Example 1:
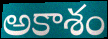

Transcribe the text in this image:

అకాశం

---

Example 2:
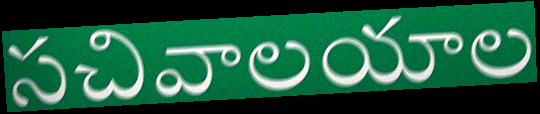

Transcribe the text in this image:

సచివాలయాల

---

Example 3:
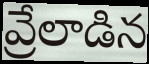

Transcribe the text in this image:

వ్రేలాడిన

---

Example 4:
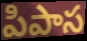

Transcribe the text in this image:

పిపాస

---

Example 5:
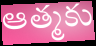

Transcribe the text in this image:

ఆత్మకు